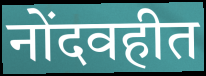
नोंदवहीत